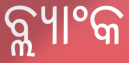
ବ୍ଲ୍ଯାଂକ